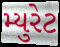
મ્યુરેટ